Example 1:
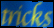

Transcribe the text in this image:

tricks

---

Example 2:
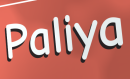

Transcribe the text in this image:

Paliya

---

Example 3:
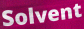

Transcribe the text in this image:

Solvent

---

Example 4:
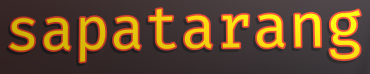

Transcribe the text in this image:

sapatarang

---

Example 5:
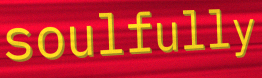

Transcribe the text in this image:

soulfully